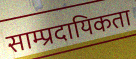
साम्प्रदायिकता